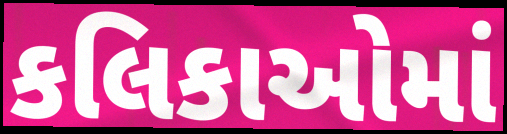
કલિકાઓમાં